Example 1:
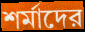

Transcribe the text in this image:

শর্মাদের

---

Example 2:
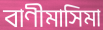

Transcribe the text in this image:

বাণীমাসিমা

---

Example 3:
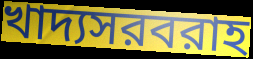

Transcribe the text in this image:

খাদ্যসরবরাহ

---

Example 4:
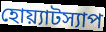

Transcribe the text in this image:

হোয়্যাটস্যাপ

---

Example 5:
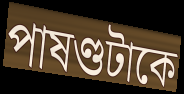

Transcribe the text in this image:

পাষণ্ডটাকে